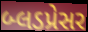
બ્લડપ્રેસર